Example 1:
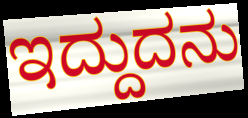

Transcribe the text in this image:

ಇದ್ದುದನು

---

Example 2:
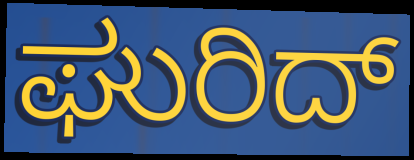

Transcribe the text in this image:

ಘುರಿದ್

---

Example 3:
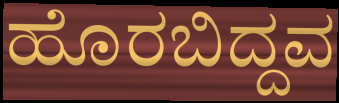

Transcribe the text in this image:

ಹೊರಬಿದ್ದವ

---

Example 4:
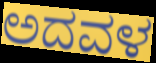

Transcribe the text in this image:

ಅದವಳ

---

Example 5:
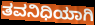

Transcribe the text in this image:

ತವನಿಧಿಯಾಗಿ